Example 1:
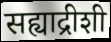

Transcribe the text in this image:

सह्याद्रीशी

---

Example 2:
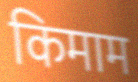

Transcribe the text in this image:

किमाम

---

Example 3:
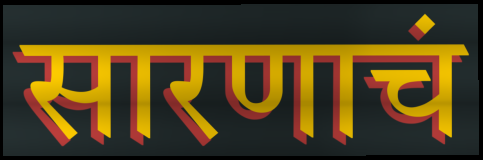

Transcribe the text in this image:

सारणाचं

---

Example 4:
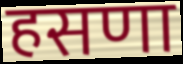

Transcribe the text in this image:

हसणा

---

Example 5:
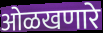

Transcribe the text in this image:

ओळखणारे